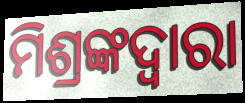
ମିଶ୍ରଙ୍କଦ୍ୱାରା